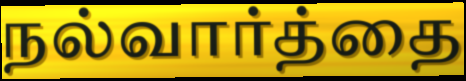
நல்வார்த்தை